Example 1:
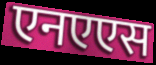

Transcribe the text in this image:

एनएएस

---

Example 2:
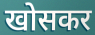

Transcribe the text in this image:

खोसकर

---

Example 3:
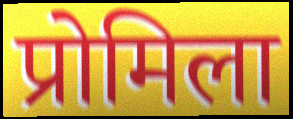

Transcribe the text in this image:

प्रोमिला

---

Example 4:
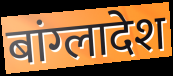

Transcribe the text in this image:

बांग्‍लादेश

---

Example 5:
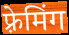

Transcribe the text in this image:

फ़्रेमिंग